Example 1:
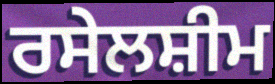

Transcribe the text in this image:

ਰਸੇਲਸ਼ੀਮ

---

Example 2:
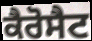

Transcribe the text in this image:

ਕੈਰੋਸੈਟ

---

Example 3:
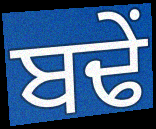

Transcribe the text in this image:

ਬਢੇਂ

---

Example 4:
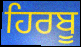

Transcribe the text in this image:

ਹਿਰਬੂ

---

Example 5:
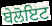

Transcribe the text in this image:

ਬੇਲੋਇਟ